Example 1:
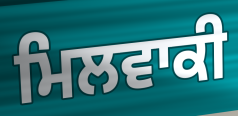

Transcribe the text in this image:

ਮਿਲਵਾਕੀ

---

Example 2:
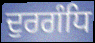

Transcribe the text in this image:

ਦੁਰਗੰਧਿ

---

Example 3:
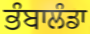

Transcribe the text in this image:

ਭੰਬਾਲੰਡਾ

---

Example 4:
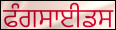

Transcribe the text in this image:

ਫੰਗਸਾਈਡਸ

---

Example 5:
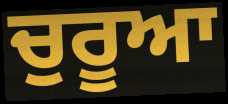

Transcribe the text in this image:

ਚੁਰੂਆ